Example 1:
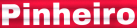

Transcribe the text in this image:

Pinheiro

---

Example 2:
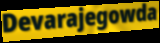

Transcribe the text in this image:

Devarajegowda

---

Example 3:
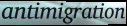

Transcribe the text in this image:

antimigration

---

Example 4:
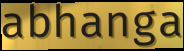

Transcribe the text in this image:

abhanga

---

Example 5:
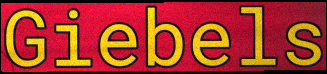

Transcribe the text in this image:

Giebels